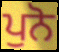
ਪੁਨੋ